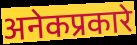
अनेकप्रकारे